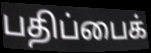
பதிப்பைக்